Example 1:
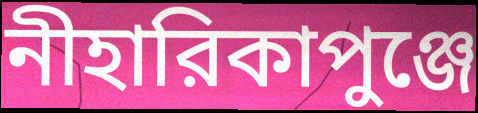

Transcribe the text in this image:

নীহারিকাপুঞ্জে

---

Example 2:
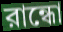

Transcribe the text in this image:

রান্ধো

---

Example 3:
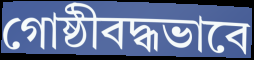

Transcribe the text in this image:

গোষ্ঠীবদ্ধভাবে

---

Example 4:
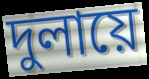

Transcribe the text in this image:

দুলায়ে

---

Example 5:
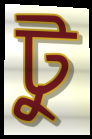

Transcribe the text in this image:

টু